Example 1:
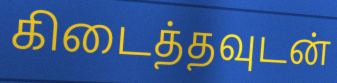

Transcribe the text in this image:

கிடைத்தவுடன்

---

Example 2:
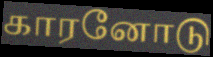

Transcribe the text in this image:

காரனோடு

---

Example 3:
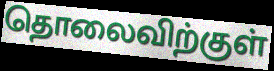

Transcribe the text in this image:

தொலைவிற்குள்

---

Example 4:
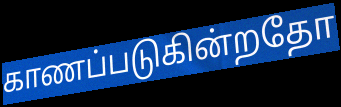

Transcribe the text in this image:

காணப்படுகின்றதோ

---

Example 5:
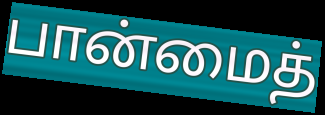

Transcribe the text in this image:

பான்மைத்